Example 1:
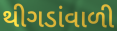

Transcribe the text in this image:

થીગડાંવાળી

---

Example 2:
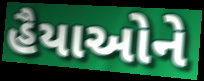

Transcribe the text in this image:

હૈયાઓને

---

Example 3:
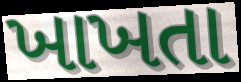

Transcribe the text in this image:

ખાખતા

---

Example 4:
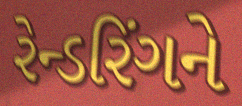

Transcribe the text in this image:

રેન્ડરિંગને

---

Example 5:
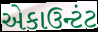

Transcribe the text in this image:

એકાઉન્ટંટ